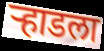
ऱ्हाडला